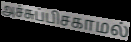
அச்சுப்பிசகாமல்